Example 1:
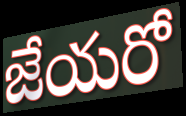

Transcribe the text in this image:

జేయరో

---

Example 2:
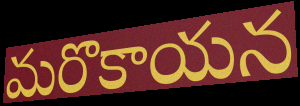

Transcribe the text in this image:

మరొకాయన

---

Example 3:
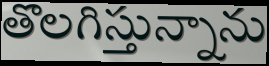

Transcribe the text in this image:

తొలగిస్తున్నాను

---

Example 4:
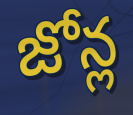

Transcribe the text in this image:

జోన్ల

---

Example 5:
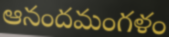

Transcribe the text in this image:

ఆనందమంగళం